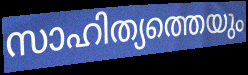
സാഹിത്യത്തെയും